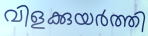
വിളക്കുയർത്തി